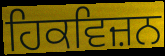
ਹਿਕਵਿਜ਼ਨ